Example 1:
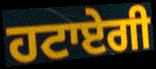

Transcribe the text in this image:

ਹਟਾਏਗੀ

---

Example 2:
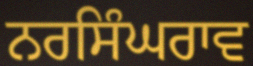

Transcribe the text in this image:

ਨਰਸਿੰਘਰਾਵ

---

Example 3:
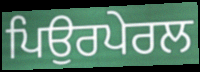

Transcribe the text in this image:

ਪਿਉਰਪੇਰਲ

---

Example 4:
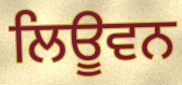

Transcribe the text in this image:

ਲਿਊਵਨ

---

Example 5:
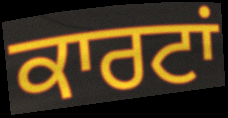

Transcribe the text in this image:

ਕਾਰਟਾਂ